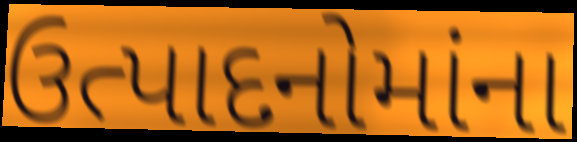
ઉત્પાદનોમાંના